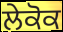
ਲੇਕੋਕ